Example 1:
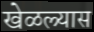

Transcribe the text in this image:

खेळल्यास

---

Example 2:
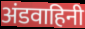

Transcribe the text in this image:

अंडवाहिनी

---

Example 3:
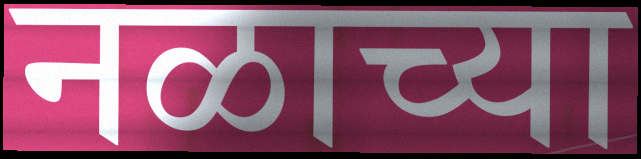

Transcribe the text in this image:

नळाच्या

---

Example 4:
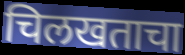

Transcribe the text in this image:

चिलखताचा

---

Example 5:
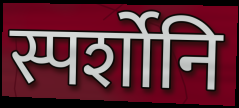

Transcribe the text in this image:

स्पर्शोनि